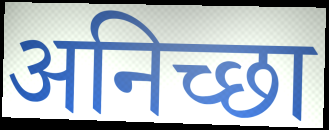
अनिच्छा